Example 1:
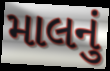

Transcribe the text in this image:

માલનું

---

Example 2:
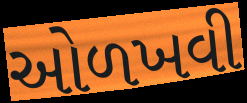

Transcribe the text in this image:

ઓળખવી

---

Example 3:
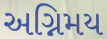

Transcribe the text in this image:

અગ્નિમય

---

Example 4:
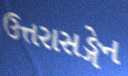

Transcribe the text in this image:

ઉત્તરાસઙ્ગેન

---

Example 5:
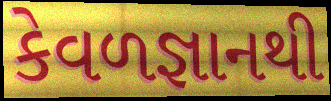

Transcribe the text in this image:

કેવળજ્ઞાનથી